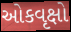
ઓકવૃક્ષો